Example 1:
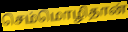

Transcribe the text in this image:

செம்மொழிதான்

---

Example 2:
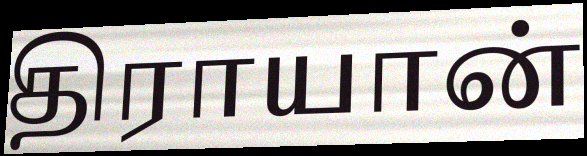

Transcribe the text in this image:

திராயான்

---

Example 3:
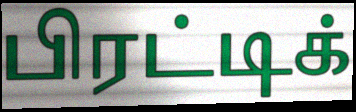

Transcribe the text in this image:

பிரட்டிக்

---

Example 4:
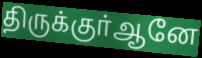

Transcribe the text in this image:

திருக்குர்ஆனே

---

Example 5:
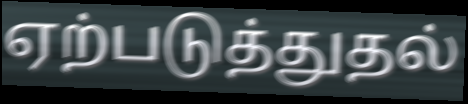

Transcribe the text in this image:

ஏற்படுத்துதல்